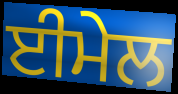
ਈਮੇਲ